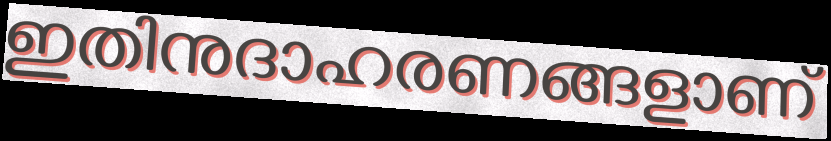
ഇതിനുദാഹരണങ്ങളാണ്